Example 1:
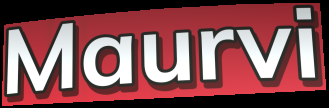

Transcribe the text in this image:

Maurvi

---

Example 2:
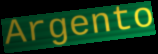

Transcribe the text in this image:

Argento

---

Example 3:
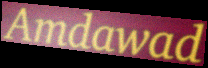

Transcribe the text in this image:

Amdawad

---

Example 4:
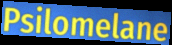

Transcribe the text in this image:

Psilomelane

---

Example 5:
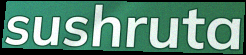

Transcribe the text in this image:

sushruta